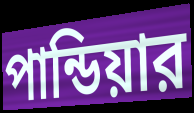
পান্ডিয়ার